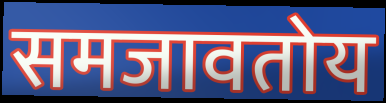
समजावतोय